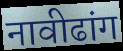
नावीढांग